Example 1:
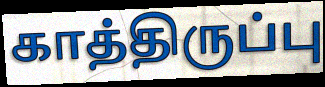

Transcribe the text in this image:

காத்திருப்பு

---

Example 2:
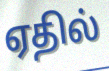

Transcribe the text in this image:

ஏதில்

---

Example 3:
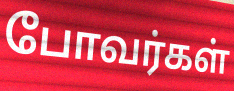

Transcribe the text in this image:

போவர்கள்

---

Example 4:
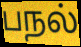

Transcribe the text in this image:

பநல்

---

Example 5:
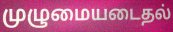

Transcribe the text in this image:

முழுமையடைதல்